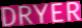
DRYER